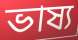
ভাষ্য